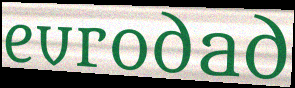
eurodad